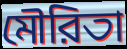
মৌরিতা